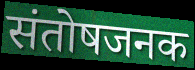
संतोषजनक